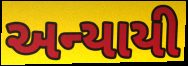
અન્યાયી